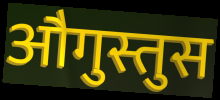
औगुस्तुस